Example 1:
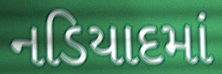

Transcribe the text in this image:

નડિયાદમાં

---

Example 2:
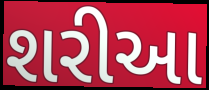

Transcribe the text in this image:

શરીઆ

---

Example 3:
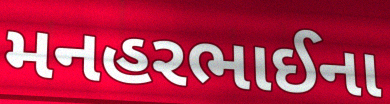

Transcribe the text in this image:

મનહરભાઈના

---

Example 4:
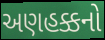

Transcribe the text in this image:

અણહક્કનો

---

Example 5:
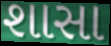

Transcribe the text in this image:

શાસા